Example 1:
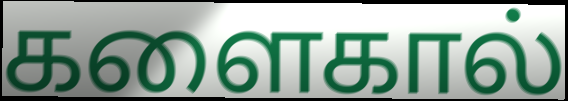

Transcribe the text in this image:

களைகால்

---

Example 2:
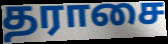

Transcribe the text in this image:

தராசை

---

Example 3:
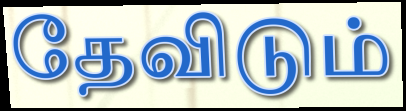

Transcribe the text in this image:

தேவிடும்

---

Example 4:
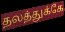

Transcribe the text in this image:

தலத்துக்கே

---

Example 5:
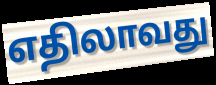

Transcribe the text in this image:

எதிலாவது